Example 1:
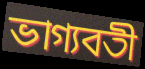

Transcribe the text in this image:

ভাগ্যবতী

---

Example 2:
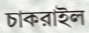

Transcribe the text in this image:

চাকরাইল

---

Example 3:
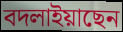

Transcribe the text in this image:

বদলাইয়াছেন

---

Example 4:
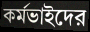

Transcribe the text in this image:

কর্মভাইদের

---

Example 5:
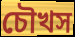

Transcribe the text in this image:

চৌখস